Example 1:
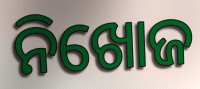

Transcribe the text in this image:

ନିଖୋଜ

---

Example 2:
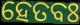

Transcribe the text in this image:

ହେତବଃ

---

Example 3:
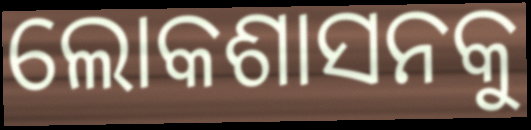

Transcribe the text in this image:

ଲୋକଶାସନକୁ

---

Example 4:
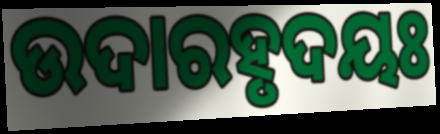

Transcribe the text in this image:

ଉଦାରହୃଦୟଃ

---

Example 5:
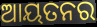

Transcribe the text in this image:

ଆୟତନର